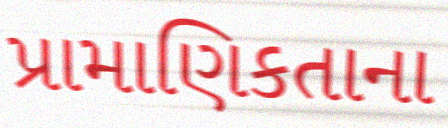
પ્રામાણિકતાના